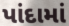
પાંદામાં